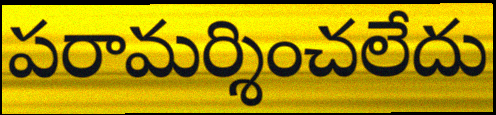
పరామర్శించలేదు